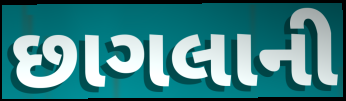
છાગલાની